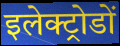
इलेक्ट्रोडों